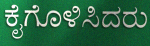
ಕೈಗೊಳಿಸಿದರು